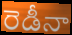
రెడీనా